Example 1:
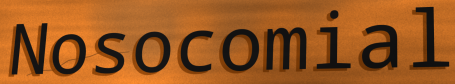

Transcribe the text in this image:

Nosocomial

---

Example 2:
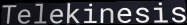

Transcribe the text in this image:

Telekinesis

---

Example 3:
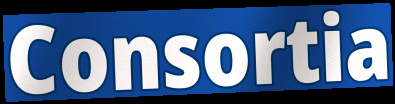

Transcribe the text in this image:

Consortia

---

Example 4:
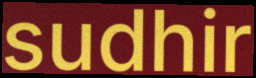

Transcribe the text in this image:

sudhir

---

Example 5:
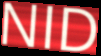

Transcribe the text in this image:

NID